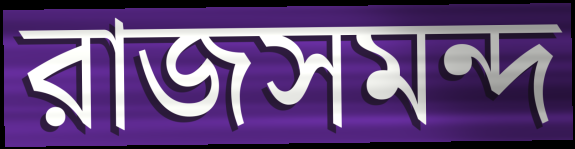
রাজসমন্দ